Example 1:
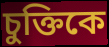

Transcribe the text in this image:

চুক্তিকে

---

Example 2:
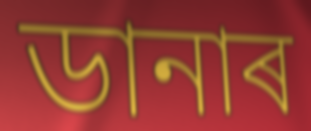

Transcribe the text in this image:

ডানাৰ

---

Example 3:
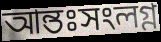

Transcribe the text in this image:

আন্তঃসংলগ্ন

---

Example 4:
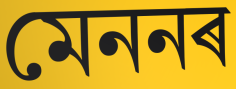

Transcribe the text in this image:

মেননৰ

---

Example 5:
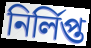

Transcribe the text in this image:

নিৰ্লিপ্ত